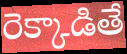
రెక్కాడితే